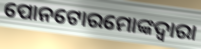
ପୋନଟୋରମୋଙ୍କଦ୍ୱାରା